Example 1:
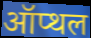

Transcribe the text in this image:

ऑप्थल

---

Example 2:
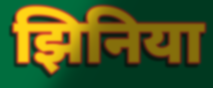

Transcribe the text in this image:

झिनिया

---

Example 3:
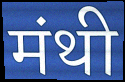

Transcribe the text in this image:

मंथी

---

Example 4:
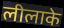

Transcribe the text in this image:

लीलाके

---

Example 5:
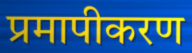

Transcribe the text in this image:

प्रमापीकरण